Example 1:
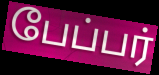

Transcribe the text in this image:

பேப்பர்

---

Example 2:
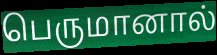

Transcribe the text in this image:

பெருமானால்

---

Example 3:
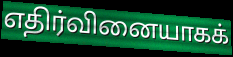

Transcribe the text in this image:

எதிர்வினையாகக்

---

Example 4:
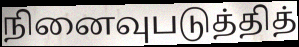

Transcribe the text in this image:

நினைவுபடுத்தித்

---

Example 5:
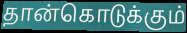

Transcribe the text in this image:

தான்கொடுக்கும்